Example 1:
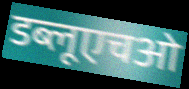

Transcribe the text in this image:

डब्लूएचओ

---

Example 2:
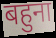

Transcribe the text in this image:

बहुना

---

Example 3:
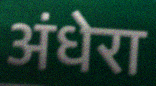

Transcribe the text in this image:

अंधेरा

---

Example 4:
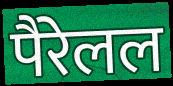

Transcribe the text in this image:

पैरेलल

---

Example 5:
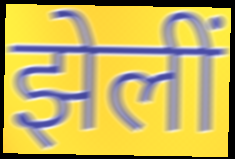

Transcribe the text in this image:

झेलीं